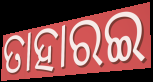
ତାହାରଇ